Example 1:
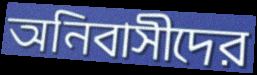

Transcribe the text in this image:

অনিবাসীদের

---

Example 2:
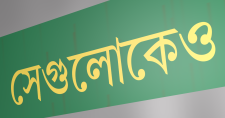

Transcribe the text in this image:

সেগুলোকেও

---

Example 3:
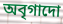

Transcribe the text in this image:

অবৃগাদো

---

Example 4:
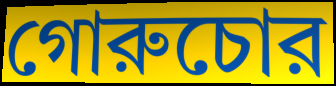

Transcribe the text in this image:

গোরুচোর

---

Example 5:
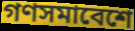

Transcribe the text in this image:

গণসমাবেশে